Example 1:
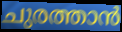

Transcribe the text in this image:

ചുരത്താൻ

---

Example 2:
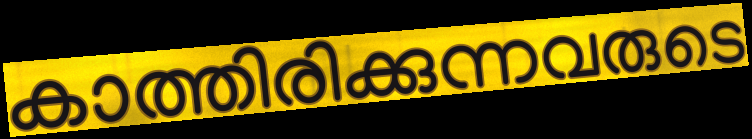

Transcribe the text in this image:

കാത്തിരിക്കുന്നവരുടെ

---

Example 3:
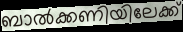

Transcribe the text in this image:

ബാൽക്കണിയിലേക്ക്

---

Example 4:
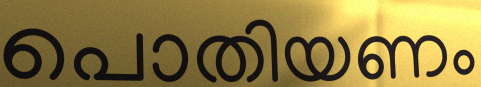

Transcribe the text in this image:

പൊതിയണം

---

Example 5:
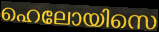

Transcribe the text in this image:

ഹെലോയിസെ